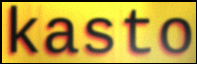
kasto